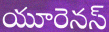
యూరెనస్